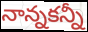
నాన్నకన్నీ